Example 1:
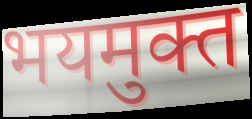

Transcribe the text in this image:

भयमुक्‍त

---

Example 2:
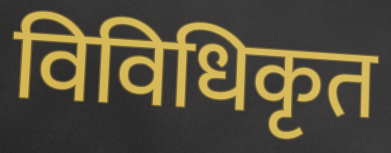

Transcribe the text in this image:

विविधिकृत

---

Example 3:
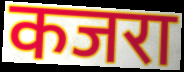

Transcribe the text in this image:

कजरा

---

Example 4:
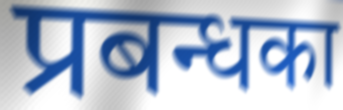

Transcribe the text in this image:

प्रबन्धका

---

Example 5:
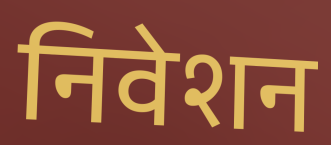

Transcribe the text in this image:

निवेशन